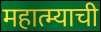
महात्म्याची